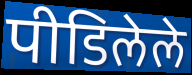
पीडिलेले